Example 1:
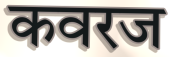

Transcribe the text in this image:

कवरज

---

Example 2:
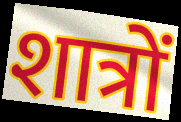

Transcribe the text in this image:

शात्रों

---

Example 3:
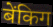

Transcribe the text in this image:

बेंकिग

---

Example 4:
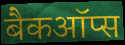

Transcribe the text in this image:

बैकऑप्स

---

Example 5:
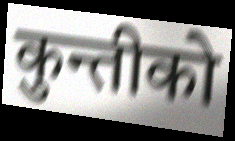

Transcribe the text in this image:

कुन्तीको